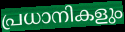
പ്രധാനികളും